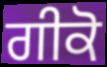
ਗੀਕੋ